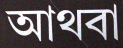
আথবা